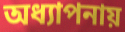
অধ্যাপনায়